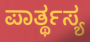
ಪಾರ್ತ್ಥಸ್ಯ